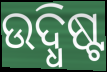
ଉଦ୍ଧିଷ୍ଟ